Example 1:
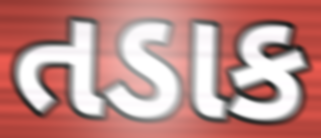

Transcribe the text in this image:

તડાક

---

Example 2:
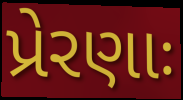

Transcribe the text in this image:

પ્રેરણાઃ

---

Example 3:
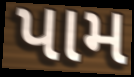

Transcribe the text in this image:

પામ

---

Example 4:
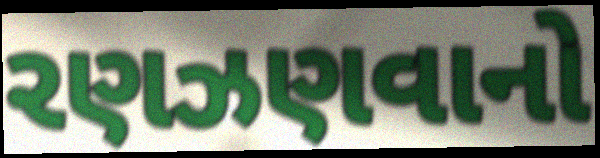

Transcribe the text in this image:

રણઝણવાનો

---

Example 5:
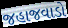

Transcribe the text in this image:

જહાજવાડો